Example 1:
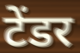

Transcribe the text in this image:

टेंडर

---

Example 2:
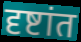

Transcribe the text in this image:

दृष्टांत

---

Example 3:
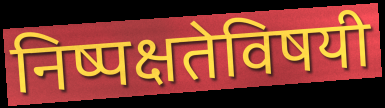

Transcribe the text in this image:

निष्पक्षतेविषयी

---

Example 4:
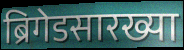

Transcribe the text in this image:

ब्रिगेडसारख्या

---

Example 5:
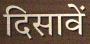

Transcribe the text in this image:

दिसावें